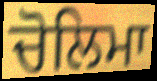
ਚੋਲਿਮਾ